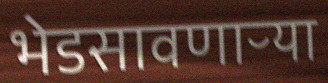
भेडसावणाऱ्या